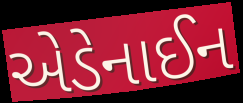
એડેનાઈન